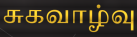
சுகவாழ்வு